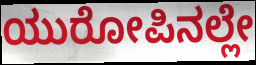
ಯುರೋಪಿನಲ್ಲೇ